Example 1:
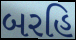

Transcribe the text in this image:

બરહિ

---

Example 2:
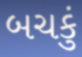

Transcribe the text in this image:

બચકું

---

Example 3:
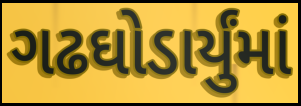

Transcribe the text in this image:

ગઢઘોડાર્યુંમાં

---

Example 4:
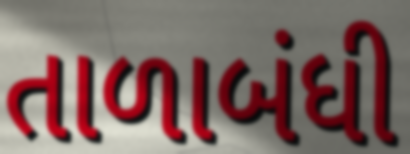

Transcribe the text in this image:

તાળાબંધી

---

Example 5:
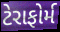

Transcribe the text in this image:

ટેરાફોર્મ